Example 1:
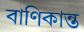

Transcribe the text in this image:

বাণিকান্ত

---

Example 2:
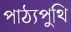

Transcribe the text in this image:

পাঠ্যপুথি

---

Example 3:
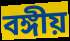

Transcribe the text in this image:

বঙ্গীয়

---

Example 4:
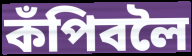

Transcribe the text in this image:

কঁপিবলৈ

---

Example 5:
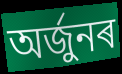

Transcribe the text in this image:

অৰ্জুনৰ